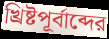
খ্রিষ্টপূর্বাব্দের